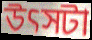
উৎসটা